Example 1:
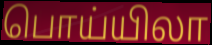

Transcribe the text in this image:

பொய்யிலா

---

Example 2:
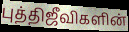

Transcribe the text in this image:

புத்திஜீவிகளின்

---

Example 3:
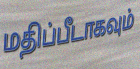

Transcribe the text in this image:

மதிப்பீடாகவும்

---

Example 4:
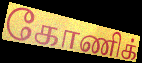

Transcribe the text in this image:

கோணிக்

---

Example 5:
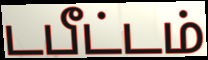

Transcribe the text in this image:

டபீட்டம்